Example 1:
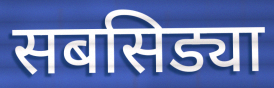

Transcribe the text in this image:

सबसिड्या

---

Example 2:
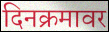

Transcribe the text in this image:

दिनक्रमावर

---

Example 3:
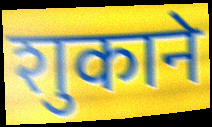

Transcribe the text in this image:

शुकाने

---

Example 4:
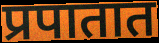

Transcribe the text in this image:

प्रपातात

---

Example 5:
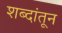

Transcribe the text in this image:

शब्दांतून